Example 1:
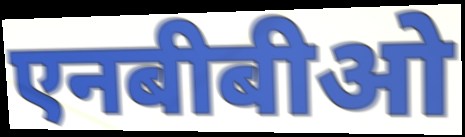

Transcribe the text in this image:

एनबीबीओ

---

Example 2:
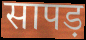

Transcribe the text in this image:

सापड़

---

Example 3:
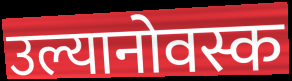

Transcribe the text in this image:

उल्यानोवस्क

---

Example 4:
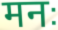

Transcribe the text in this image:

मनः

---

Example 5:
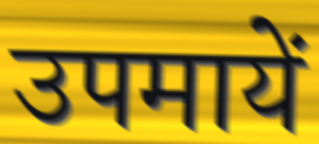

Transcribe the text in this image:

उपमायें